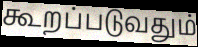
கூறப்படுவதும்